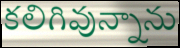
కలిగివున్నాను